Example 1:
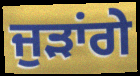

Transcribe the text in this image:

ਜੁੜਾਂਗੇ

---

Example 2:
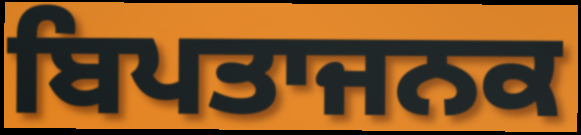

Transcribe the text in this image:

ਬਿਪਤਾਜਨਕ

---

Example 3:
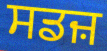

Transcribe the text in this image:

ਸਡਜ਼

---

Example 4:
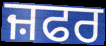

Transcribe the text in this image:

ਜ਼ਫਰ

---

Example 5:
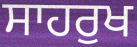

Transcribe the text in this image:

ਸਾਹਰੁਖ